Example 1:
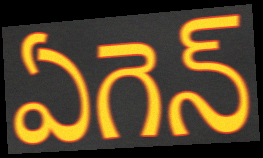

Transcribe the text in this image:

ఏగెన్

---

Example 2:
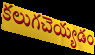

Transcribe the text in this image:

కలుగచెయ్యడం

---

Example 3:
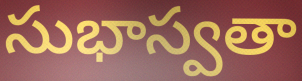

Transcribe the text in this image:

సుభాస్వతా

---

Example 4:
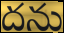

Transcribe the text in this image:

దను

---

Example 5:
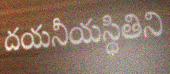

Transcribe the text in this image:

దయనీయస్థితిని